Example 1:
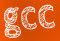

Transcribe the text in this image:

gcc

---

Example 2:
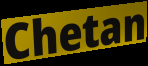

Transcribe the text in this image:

Chetan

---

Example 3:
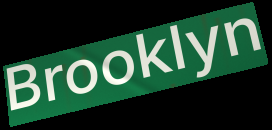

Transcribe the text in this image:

Brooklyn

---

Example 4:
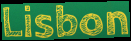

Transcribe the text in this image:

Lisbon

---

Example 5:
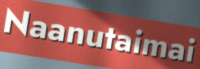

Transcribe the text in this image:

Naanutaimai